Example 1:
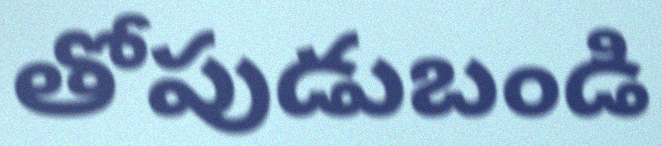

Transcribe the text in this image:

తోపుడుబండి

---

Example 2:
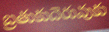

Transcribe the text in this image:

బ్రతుకుదెరువుకు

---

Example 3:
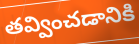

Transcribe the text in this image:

తవ్వించడానికి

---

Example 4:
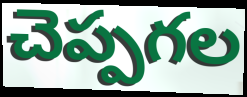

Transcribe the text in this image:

చెప్పగల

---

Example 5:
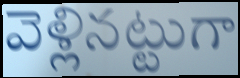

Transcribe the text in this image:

వెళ్లినట్టుగా